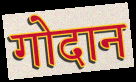
गोदान